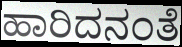
ಹಾರಿದನಂತೆ